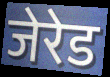
जेरेड